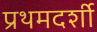
प्रथमदर्शी